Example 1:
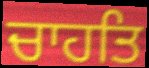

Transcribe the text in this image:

ਚਾਹਤਿ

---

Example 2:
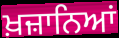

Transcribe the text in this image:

ਖ਼ਜ਼ਾਨਿਆਂ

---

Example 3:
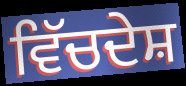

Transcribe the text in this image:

ਵਿੱਚਦੇਸ਼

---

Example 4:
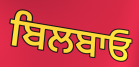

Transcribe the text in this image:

ਬਿਲਬਾਓ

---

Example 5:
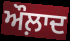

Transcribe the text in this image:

ਔਲ਼ਾਦ